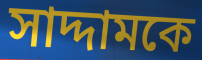
সাদ্দামকে